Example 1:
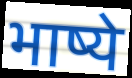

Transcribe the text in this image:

भाष्ये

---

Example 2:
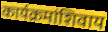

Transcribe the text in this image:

कार्यक्रमांशिवाय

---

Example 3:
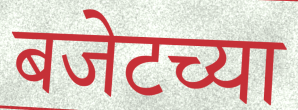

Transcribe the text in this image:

बजेटच्या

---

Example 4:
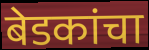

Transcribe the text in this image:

बेडकांचा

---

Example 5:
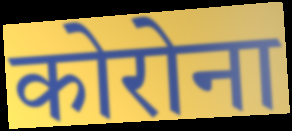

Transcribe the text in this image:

कोरोना